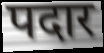
पदार